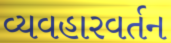
વ્યવહારવર્તન